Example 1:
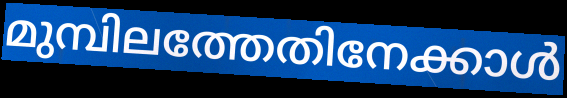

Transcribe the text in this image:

മുമ്പിലത്തേതിനേക്കാൾ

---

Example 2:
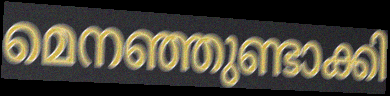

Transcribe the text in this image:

മെനഞ്ഞുണ്ടാക്കി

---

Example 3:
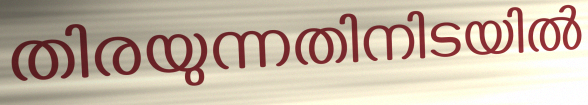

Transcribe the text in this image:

തിരയുന്നതിനിടയിൽ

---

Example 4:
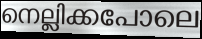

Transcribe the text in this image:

നെല്ലിക്കപോലെ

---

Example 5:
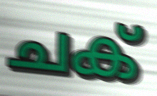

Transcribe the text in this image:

ചക്